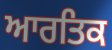
ਆਰਤਿਕ